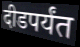
दीडपर्यंत